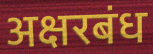
अक्षरबंध